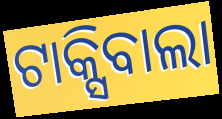
ଟାକ୍ସିବାଲା